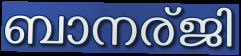
ബാനര്ജി